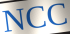
NCC